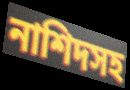
নাশিদসহ